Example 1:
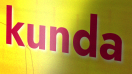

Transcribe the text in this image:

kunda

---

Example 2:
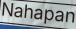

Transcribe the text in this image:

Nahapan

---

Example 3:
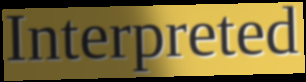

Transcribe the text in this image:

Interpreted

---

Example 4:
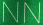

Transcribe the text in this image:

NN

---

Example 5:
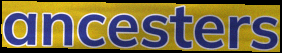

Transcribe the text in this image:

ancesters